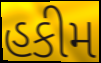
હકીમ